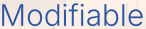
Modifiable